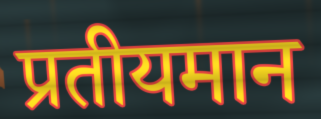
प्रतीयमान